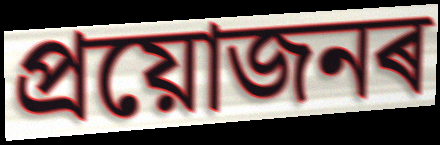
প্ৰয়োজনৰ